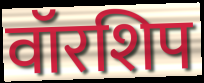
वॉरशिप